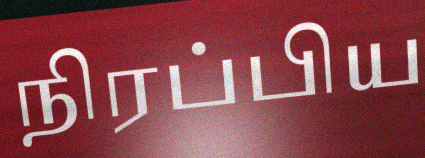
நிரப்பிய